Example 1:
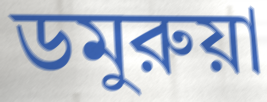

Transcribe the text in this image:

ডমুরুয়া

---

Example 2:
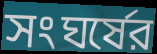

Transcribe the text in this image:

সংঘর্ষের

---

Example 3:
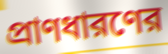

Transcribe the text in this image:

প্রাণধারণের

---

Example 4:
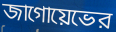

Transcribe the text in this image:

জাগোয়েভের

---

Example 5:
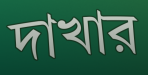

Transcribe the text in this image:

দাখার